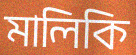
মালিকি